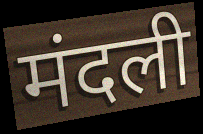
मंदली